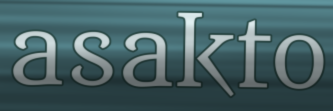
asakto